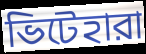
ভিটেহারা